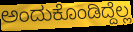
ಅಂದುಕೊಂಡಿದ್ದೆಲ್ಲ